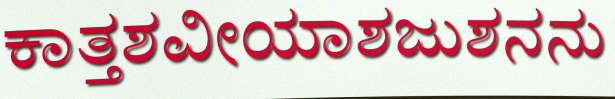
ಕಾತ್ತಶವೀಯಾಶಜುಶನನು